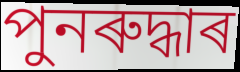
পুনৰুদ্ধাৰ